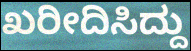
ಖರೀದಿಸಿದ್ದು